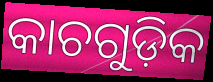
କାଚଗୁଡ଼ିକ